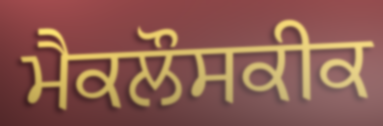
ਮੈਕਲੌਸਕੀਕ